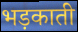
भड़काती